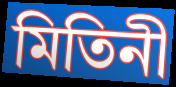
মিতিনী